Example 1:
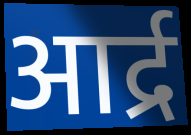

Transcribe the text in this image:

आर्द्र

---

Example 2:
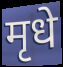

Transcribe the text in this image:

मृधे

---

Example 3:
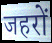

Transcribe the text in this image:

जहरों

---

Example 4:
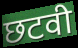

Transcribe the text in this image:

छटवी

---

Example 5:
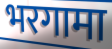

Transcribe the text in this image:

भरगामा